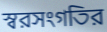
স্বরসংগতির